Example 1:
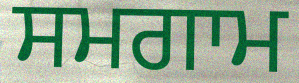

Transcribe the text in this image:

ਸਮਗਾਮ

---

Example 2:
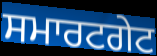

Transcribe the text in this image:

ਸਮਾਰਟਗੇਟ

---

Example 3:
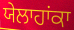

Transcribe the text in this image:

ਯੇਲਾਹਾਂਕਾ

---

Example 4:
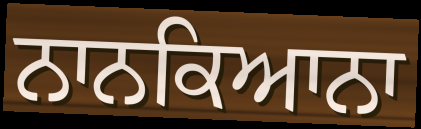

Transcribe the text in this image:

ਨਾਨਕਿਆਨਾ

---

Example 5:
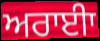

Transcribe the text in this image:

ਅਰਾਈਾ